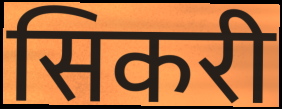
सिकरी